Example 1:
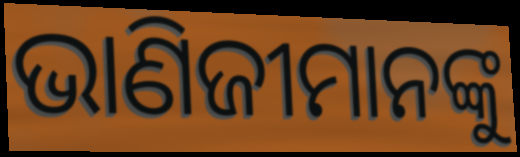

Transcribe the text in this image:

ଭାଣିଜୀମାନଙ୍କୁ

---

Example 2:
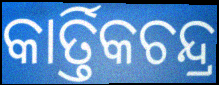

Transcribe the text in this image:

କାର୍ତ୍ତିକଚନ୍ଦ୍ର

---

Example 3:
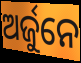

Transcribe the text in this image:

ଅର୍ଜୁନେ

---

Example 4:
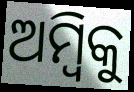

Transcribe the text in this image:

ଅମ୍ବିକୁ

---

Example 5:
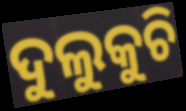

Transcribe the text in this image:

ଦୁଲୁକୁଚି